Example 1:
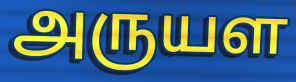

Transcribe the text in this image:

அருயள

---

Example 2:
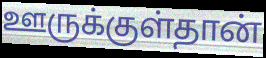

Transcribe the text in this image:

ஊருக்குள்தான்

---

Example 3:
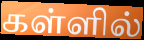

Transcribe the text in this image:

கள்ளில்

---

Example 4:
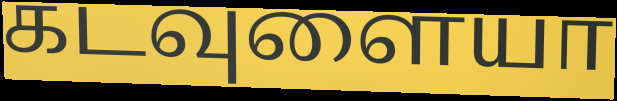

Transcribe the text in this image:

கடவுளையா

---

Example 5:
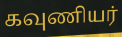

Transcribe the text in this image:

கவுணியர்